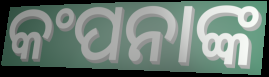
କଂପନାଙ୍କ